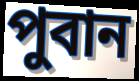
পুবান